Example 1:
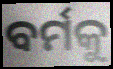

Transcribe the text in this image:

ବର୍ମକୁ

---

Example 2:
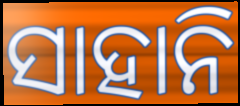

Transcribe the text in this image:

ସାହାନି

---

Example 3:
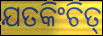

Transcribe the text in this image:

ଯତକିଂଚିତ୍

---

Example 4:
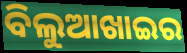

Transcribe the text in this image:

ବିଲୁଆଖାଇର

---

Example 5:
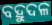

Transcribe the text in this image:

ବହୁଦଳ